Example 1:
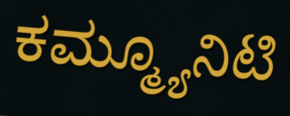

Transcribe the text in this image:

ಕಮ್ಮ್ಯೂನಿಟಿ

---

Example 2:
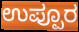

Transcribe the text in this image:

ಉಪ್ಪೂರ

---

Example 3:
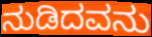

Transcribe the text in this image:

ನುಡಿದವನು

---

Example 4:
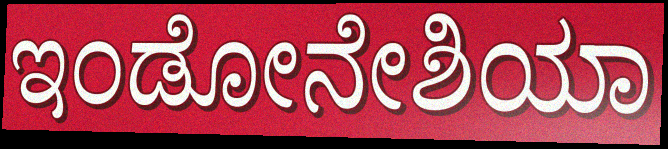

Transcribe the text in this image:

ಇಂಡೋನೇಶಿಯಾ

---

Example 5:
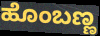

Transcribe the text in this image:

ಹೊಂಬಣ್ಣ